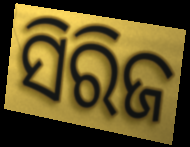
ସିରିଜ